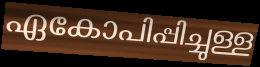
ഏകോപിപ്പിച്ചുള്ള